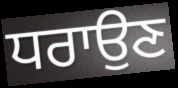
ਧਰਾਉਣ